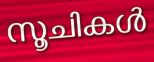
സൂചികൾ